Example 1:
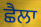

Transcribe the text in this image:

ਛੈਲਾ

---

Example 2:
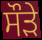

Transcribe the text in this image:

ਸੌੜੇ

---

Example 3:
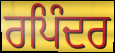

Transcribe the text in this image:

ਰਪਿੰਦਰ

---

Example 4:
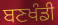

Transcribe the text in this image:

ਬਣਖੰਡੀ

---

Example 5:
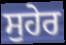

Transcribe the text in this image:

ਸੁਹੇਰ